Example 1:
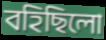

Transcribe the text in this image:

বহিছিলো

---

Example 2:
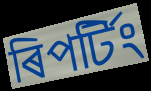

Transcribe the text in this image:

ৰিপৰ্টিং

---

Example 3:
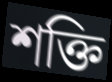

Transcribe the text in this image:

শক্তি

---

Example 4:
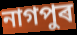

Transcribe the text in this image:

নাগপুৰ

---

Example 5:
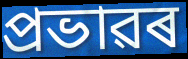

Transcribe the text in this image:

প্ৰভাৱৰ